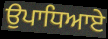
ਉਪਾਧਿਆਏ